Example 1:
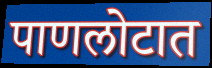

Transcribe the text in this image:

पाणलोटात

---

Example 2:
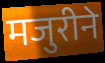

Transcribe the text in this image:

मजुरीने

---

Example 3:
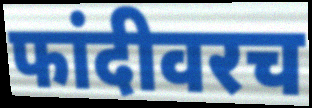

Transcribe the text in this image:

फांदीवरच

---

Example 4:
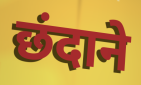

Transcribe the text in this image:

छंदाने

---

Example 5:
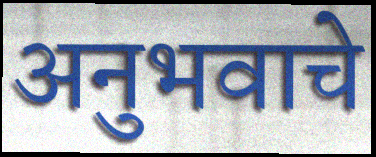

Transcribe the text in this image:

अनुभवाचे